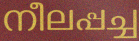
നീലപ്പച്ച